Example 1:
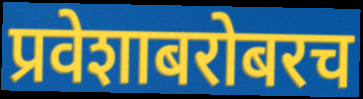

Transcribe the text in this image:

प्रवेशाबरोबरच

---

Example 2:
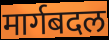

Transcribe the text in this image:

मार्गबदल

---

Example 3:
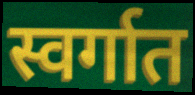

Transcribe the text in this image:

स्वर्गात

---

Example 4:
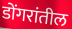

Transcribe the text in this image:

डोंगरांतील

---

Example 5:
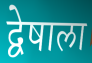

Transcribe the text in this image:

द्वेषाला